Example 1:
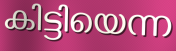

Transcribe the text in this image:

കിട്ടിയെന്ന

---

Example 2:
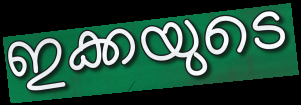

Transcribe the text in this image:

ഇക്കയുടെ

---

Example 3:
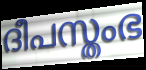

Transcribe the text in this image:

ദീപസ്തംഭ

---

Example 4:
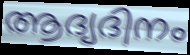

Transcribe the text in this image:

ആദ്യദിനം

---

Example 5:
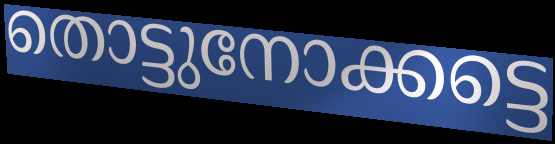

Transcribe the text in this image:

തൊട്ടുനോക്കട്ടെ